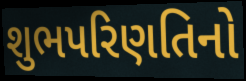
શુભપરિણતિનો